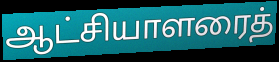
ஆட்சியாளரைத்